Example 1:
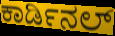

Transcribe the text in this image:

ಕಾರ್ಡಿನಲ್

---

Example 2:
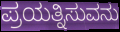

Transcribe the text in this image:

ಪ್ರಯತ್ನಿಸುವನು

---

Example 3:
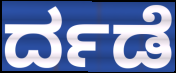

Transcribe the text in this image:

ರ್ದಡೆ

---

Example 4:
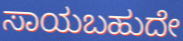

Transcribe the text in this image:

ಸಾಯಬಹುದೇ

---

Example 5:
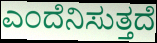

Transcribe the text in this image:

ಎಂದೆನಿಸುತ್ತದೆ